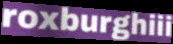
roxburghiii